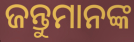
ଜନ୍ତୁମାନଙ୍କ